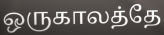
ஒருகாலத்தே